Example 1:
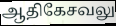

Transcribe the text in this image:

ஆதிகேசவலு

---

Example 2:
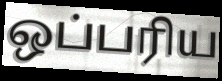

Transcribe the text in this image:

ஒப்பரிய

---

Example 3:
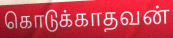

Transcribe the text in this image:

கொடுக்காதவன்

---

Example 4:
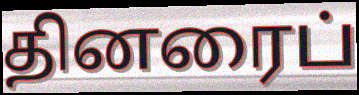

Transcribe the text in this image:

தினரைப்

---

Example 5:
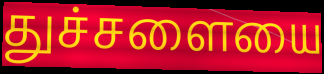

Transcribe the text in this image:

துச்சளையை